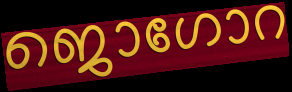
ജൊഗോറ